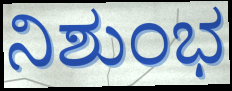
ನಿಶುಂಭ